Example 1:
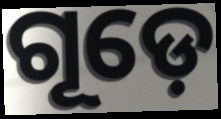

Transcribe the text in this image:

ଗୂଡ଼େ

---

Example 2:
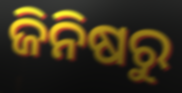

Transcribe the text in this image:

ଜିନିଷରୁ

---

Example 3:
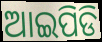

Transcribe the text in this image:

ଆଇପିଡି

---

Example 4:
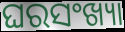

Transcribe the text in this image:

ଘରସଂଖ୍ୟା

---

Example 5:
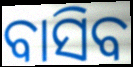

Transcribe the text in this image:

ବାସିବ